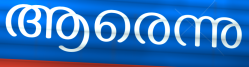
ആരെന്നു